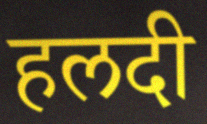
हलदी